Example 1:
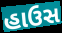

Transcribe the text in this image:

હાઉસ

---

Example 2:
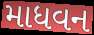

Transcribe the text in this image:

માધવન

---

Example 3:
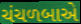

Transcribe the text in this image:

ચંચળબાએ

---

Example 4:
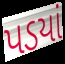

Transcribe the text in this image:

પડયાં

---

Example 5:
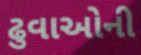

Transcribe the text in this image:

ઢુવાઓની